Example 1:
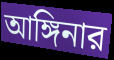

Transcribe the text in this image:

আঙ্গিনার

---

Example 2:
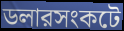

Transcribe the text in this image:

ডলারসংকটে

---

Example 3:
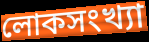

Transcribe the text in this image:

লোকসংখ্যা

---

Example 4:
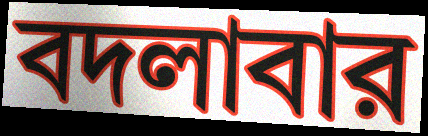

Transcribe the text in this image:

বদলাবার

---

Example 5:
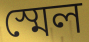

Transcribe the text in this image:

স্মেল